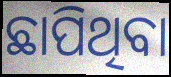
ଛାପିଥିବା